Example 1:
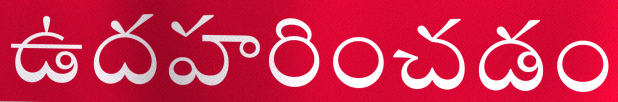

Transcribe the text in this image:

ఉదహరించడం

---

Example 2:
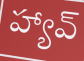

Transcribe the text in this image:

హ్యావ్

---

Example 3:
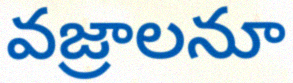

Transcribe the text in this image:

వజ్రాలనూ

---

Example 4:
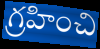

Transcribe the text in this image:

గ్రహించి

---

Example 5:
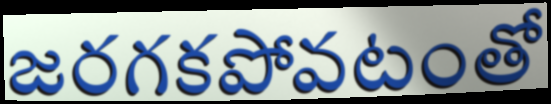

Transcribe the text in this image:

జరగకపోవటంతో